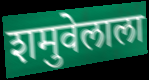
शमुवेलाला